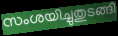
സംശയിച്ചുതുടങ്ങി